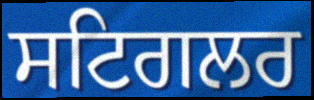
ਸਟਿਗਲਰ